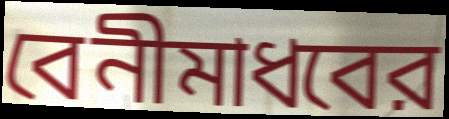
বেনীমাধবের